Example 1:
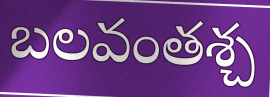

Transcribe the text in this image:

బలవంతశ్చ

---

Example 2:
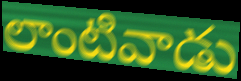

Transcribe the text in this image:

లాంటివాడు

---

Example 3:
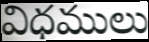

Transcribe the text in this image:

విధములు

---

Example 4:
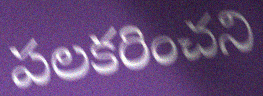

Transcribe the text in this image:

పలకరించని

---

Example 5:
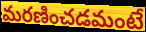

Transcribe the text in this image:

మరణించడమంటే